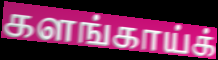
களங்காய்க்